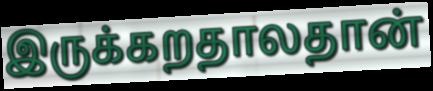
இருக்கறதாலதான்